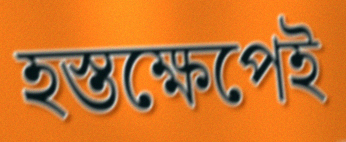
হস্তক্ষেপেই